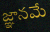
జ్ఞానమే